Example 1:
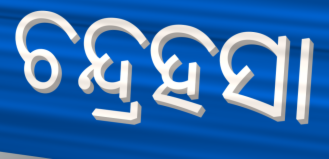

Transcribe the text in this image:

ଚନ୍ଦ୍ରହସା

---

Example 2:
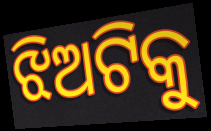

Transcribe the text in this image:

ଝିଅଟିକୁ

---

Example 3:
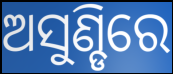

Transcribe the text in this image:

ଅସୁଣ୍ଡିରେ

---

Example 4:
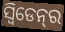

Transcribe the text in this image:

ସ୍ୱିଡେନ୍‌ର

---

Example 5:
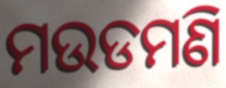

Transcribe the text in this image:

ମଉଡମଣି